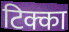
टिक्का